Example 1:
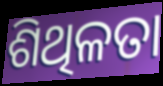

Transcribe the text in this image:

ଶିଥିଳତା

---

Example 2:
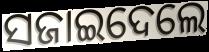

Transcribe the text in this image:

ସଜାଇଦେଲେ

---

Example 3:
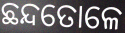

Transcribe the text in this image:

ଛନ୍ଦତୋଳେ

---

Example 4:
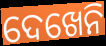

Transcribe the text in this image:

ଦେଖେନି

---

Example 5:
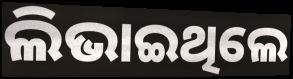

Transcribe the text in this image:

ଲିଭାଇଥିଲେ